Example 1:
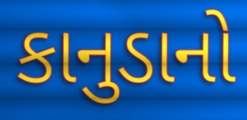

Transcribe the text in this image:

કાનુડાનો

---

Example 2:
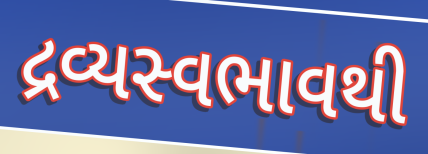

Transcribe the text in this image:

દ્રવ્યસ્વભાવથી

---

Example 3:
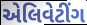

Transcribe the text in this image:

એલિવેટીંગ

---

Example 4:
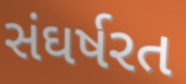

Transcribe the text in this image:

સંઘર્ષરત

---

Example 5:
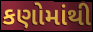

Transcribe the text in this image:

કણોમાંથી